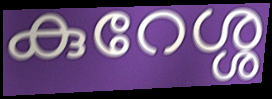
കുറേശ്ശ